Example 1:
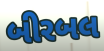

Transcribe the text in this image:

બીરબલ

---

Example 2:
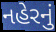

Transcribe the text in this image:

નહેરનું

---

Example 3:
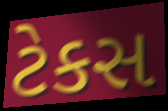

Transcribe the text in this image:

ટેકસ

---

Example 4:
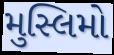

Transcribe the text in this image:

મુસ્લિમો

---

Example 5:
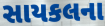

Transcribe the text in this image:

સાયકલના